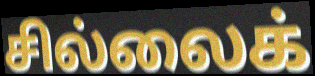
சில்லைக்